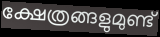
ക്ഷേത്രങ്ങളുമുണ്ട്